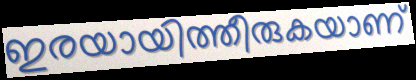
ഇരയായിത്തീരുകയാണ്